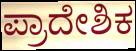
ಪ್ರಾದೇಶಿಕ